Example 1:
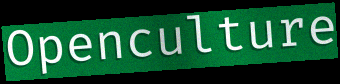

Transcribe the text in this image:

Openculture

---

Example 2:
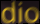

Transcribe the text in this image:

dio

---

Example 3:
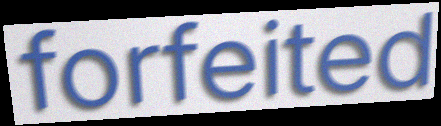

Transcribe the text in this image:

forfeited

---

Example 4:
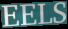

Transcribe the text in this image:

EELS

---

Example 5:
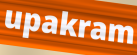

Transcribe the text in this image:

upakram